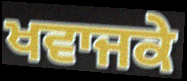
ਖਵਾਜਕੇ